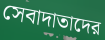
সেবাদাতাদের